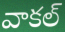
వాకల్